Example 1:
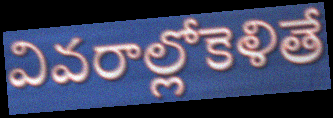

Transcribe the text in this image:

వివరాల్లోకెళితే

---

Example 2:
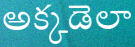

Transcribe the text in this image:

అక్కడెలా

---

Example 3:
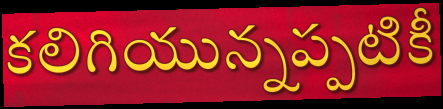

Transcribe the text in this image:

కలిగియున్నప్పటికీ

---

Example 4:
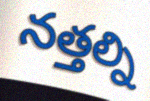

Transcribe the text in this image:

నత్తల్ని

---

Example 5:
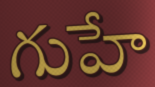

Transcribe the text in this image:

గుహే